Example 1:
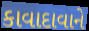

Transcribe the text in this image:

કાવાદાવાને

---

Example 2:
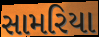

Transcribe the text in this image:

સામરિયા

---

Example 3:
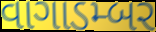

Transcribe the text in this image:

વાગાડમ્બર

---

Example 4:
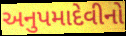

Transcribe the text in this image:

અનુપમાદેવીનો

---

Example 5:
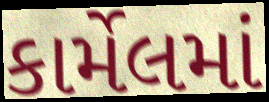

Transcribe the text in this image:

કાર્મેલમાં